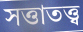
সত্তাতত্ত্ব